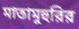
মাতামুহুরির